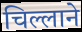
चिल्लाने